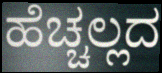
ಹೆಚ್ಚಲ್ಲದ